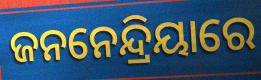
ଜନନେନ୍ଦ୍ରିୟାରେ